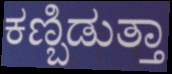
ಕಣ್ಬಿಡುತ್ತಾ